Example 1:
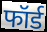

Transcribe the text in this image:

फॉर्ड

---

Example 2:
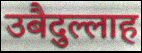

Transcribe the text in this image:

उबैदुल्लाह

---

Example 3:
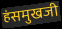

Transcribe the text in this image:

हंसमुखजी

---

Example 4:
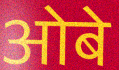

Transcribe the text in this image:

ओबे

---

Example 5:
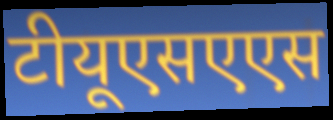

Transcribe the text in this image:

टीयूएसएएस